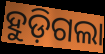
ହୁଡ଼ିଗଲା